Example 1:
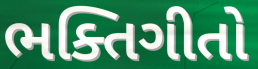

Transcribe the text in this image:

ભક્તિગીતો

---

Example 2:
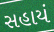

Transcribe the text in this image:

સહાયં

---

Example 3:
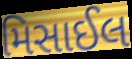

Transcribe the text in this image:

મિસાઈલ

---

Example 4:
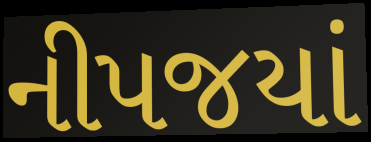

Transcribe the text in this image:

નીપજયાં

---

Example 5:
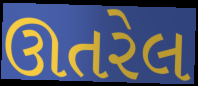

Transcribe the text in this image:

ઊતરેલ